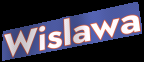
Wislawa